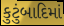
કુટુંબાદિમાં